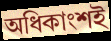
অধিকাংশই